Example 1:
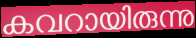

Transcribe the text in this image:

കവറായിരുന്നു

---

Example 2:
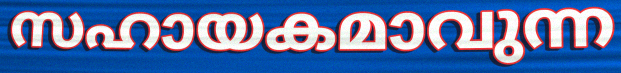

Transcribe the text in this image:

സഹായകമാവുന്ന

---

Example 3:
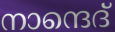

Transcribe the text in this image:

നാന്ദെദ്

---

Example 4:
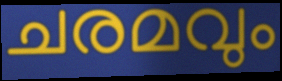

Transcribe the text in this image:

ചരമവും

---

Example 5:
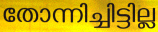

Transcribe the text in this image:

തോന്നിച്ചിട്ടില്ല